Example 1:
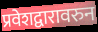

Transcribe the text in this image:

प्रवेशद्वारावरुन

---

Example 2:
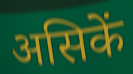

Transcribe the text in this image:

असिकें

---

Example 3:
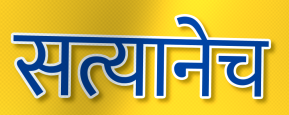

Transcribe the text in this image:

सत्यानेच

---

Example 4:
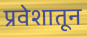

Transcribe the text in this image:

प्रवेशातून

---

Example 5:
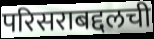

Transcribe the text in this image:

परिसराबद्दलची